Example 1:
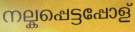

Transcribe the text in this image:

നല്കപ്പെട്ടപ്പോള്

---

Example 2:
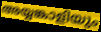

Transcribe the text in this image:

അയ്യങ്കാളിയും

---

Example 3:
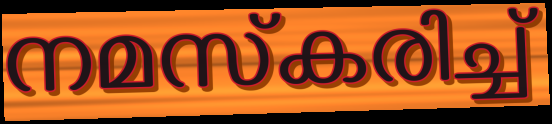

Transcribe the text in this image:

നമസ്‌കരിച്ച്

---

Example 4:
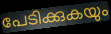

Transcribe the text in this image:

പേടിക്കുകയും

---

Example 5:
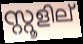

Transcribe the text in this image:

സ്റ്റൂളില്